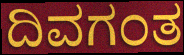
ದಿವಗಂತ